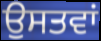
ਉਸਤਵਾਂ